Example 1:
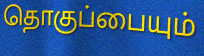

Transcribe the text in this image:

தொகுப்பையும்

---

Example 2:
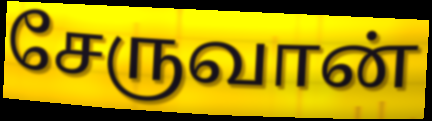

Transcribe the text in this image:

சேருவான்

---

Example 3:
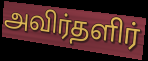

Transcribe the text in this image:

அவிர்தளிர்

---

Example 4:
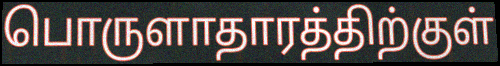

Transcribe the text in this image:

பொருளாதாரத்திற்குள்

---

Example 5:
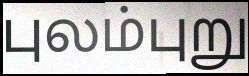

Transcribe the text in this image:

புலம்புறு